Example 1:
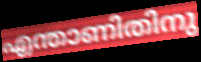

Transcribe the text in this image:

എന്താണിതിനു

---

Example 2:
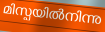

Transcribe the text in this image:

മിസ്പയിൽനിന്നു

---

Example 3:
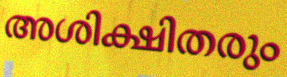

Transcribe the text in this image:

അശിക്ഷിതരും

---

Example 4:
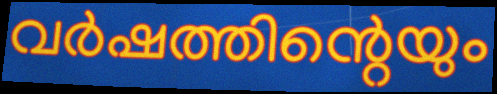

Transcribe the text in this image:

വർഷത്തിന്റെയും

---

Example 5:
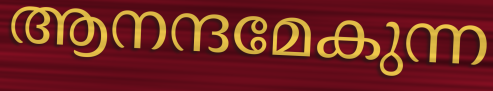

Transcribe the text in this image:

ആനന്ദമേകുന്ന